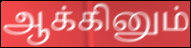
ஆக்கினும்